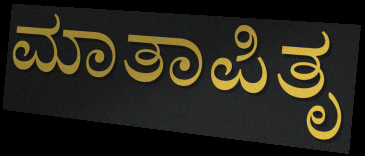
ಮಾತಾಪಿತೃ